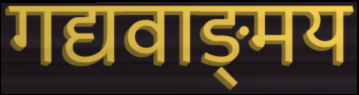
गद्यवाङ्मय